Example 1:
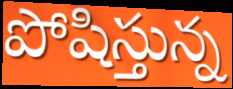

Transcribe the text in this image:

పోషిస్తున్న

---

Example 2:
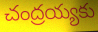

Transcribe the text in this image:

చంద్రయ్యకు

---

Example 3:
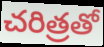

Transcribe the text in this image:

చరిత్రతో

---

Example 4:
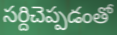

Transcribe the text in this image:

సర్దిచెప్పడంతో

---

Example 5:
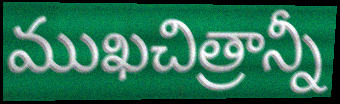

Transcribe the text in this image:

ముఖచిత్రాన్నీ